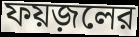
ফয়জ়লের